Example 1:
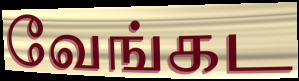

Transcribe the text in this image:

வேங்கட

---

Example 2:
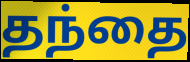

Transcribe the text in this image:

தந்தை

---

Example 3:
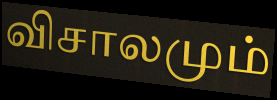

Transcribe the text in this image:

விசாலமும்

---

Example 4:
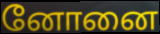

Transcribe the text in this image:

னோனை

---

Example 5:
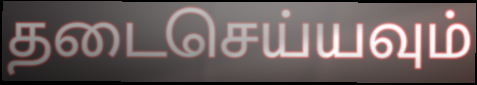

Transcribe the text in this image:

தடைசெய்யவும்